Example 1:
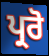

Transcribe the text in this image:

ਪ੍ਰਰੋ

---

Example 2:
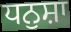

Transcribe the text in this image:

ਧਨੁਸ਼ਾ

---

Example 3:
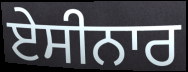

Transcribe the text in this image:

ਏਸੀਨਾਰ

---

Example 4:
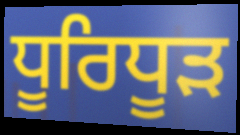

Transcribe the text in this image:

ਧੂਰਿਧੂੜ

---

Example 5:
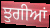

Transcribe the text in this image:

ਝੁਗੀਆਂ